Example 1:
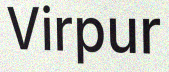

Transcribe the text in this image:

Virpur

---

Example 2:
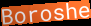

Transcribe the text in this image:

Boroshe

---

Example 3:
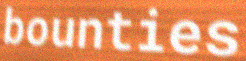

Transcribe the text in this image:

bounties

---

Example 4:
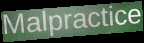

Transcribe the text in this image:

Malpractice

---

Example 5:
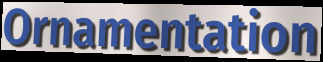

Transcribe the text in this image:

Ornamentation